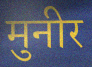
मुनीर